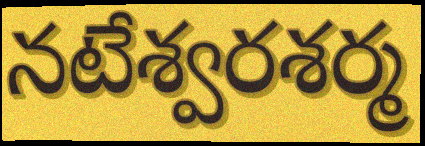
నటేశ్వరశర్మ